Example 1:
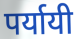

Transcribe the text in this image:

पर्यायी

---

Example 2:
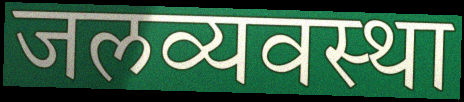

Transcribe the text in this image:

जलव्यवस्था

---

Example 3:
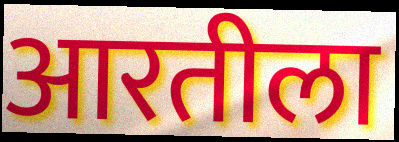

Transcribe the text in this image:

आरतीला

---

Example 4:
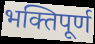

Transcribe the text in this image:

भक्तिपूर्ण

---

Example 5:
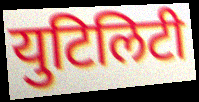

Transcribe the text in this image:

युटिलिटी